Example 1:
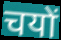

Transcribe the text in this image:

चयों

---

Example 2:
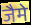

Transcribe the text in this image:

जैमे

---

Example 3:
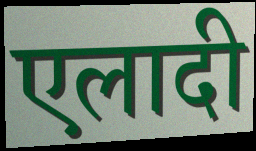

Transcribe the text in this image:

एलादी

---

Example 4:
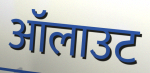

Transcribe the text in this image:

ऑलाउट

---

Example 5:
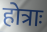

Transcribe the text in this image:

होत्राः